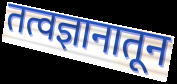
तत्वज्ञानातून